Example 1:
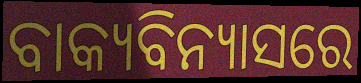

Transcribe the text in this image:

ବାକ୍ୟବିନ୍ୟାସରେ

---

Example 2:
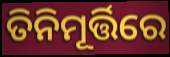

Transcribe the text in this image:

ତିନିମୂର୍ତ୍ତିରେ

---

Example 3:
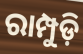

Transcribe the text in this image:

ରାମ୍ପୁଡ଼ି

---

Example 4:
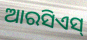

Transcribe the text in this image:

ଆରସିଏସ୍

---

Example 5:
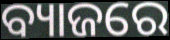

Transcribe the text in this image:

ବ୍ୟାଜରେ